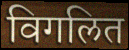
विगलित